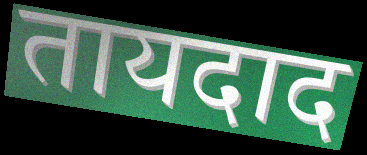
तायदाद